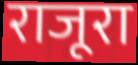
राजूरा